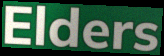
Elders